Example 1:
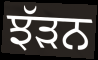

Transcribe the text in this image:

ਝੱੜਨ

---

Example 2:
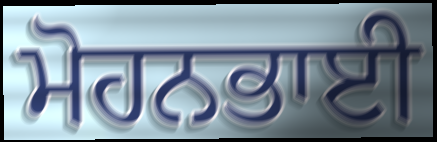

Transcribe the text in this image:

ਮੋਹਨਭਾਈ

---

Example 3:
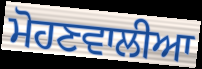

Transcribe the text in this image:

ਮੋਹਣਵਾਲੀਆ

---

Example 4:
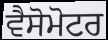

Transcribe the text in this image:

ਵੈਸੋਮੋਟਰ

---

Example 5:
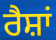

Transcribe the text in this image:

ਰੈਸ਼ਾਂ